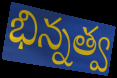
భిన్నత్వ